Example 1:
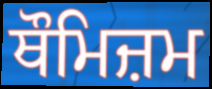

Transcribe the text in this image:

ਥੌਮਿਜ਼ਮ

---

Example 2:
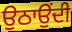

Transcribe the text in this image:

ਉਠਾਉਂਦੀ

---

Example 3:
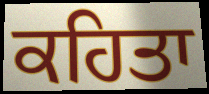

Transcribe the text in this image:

ਕਹਿਤਾ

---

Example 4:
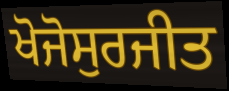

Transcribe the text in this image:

ਖੋਜੋਸੁਰਜੀਤ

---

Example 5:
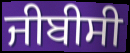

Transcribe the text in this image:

ਜੀਬੀਸੀ